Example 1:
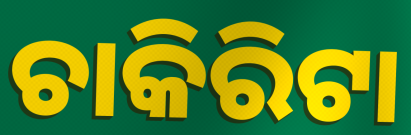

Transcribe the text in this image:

ଚାକିରିଟା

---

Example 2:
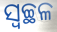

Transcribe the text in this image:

ସ୍ୱଚ୍ଛଳ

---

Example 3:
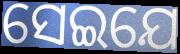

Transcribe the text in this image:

ସେଇଯେ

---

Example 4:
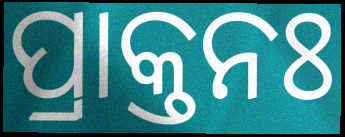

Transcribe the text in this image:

ପ୍ରାକ୍ତନଃ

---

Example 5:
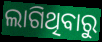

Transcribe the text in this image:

ଲାଗିଥିବାରୁ